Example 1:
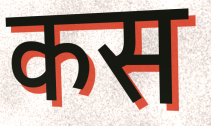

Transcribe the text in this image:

कस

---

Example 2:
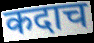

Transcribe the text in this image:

कदाच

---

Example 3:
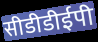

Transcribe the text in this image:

सीडीडीईपी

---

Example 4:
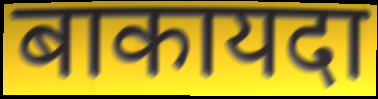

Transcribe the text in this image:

बाकायदा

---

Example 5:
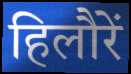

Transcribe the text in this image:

हिलौरें